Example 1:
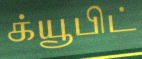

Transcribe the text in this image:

க்யூபிட்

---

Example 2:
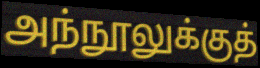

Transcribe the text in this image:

அந்நூலுக்குத்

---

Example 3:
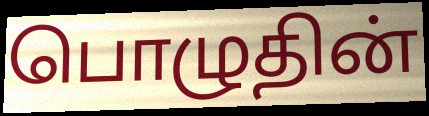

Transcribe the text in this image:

பொழுதின்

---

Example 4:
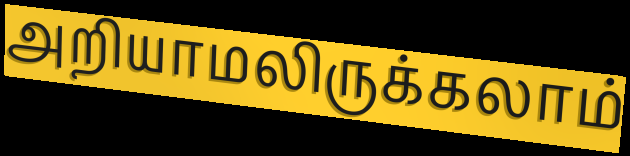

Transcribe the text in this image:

அறியாமலிருக்கலாம்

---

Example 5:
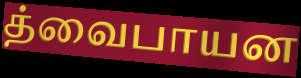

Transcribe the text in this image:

த்வைபாயன